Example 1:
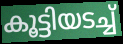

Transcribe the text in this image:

കൂട്ടിയടച്ച്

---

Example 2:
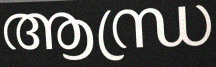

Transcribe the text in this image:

ആന്ധ്ര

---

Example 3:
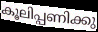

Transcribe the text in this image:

കൂലിപ്പണിക്കു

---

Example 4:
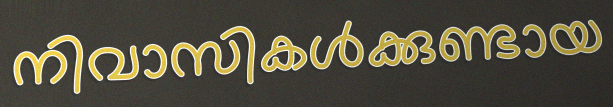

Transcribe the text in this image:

നിവാസികൾക്കുണ്ടായ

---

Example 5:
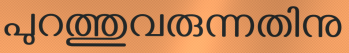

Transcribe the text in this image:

പുറത്തുവരുന്നതിനു